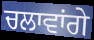
ਚਲਾਵਾਂਗੇ